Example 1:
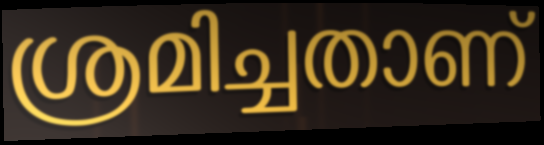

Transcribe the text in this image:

ശ്രമിച്ചതാണ്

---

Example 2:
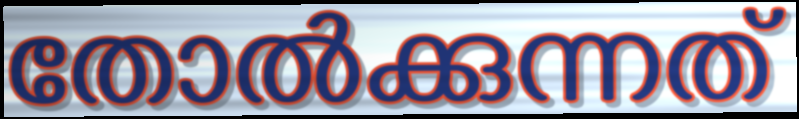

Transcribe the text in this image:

തോൽക്കുന്നത്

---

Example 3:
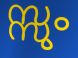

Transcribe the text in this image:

സ്സും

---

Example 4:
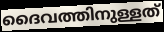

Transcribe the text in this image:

ദൈവത്തിനുള്ളത്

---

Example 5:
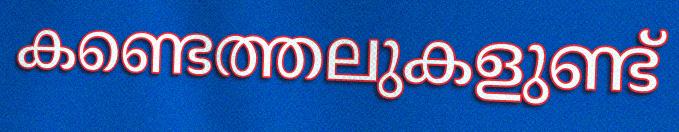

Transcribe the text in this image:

കണ്ടെത്തലുകളുണ്ട്